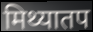
मिथ्यातप